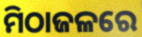
ମିଠାଜଳରେ